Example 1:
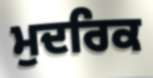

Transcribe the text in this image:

ਮੁਦਰਿਕ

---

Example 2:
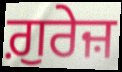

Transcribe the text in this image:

ਗ਼ੁਰੇਜ਼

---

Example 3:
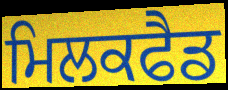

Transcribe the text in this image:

ਮਿਲਕਫੈਡ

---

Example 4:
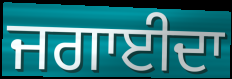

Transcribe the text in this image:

ਜਗਾਈਦਾ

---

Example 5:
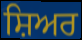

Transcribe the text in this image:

ਸ਼ਿਅਰ